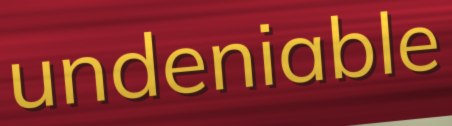
undeniable